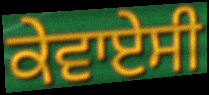
ਕੇਵਾਏਸੀ